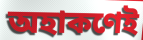
অহাকণেই